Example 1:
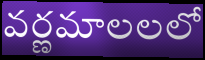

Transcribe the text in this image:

వర్ణమాలలలో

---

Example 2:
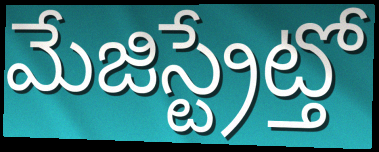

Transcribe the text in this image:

మేజిస్ట్రేట్తో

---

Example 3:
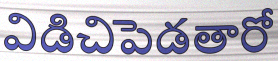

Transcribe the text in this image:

విడిచిపెడతారో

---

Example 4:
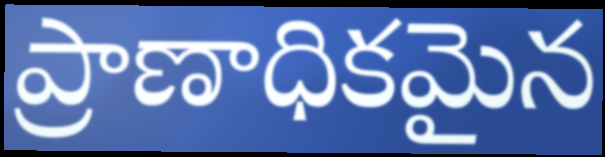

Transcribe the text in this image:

ప్రాణాధికమైన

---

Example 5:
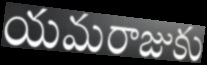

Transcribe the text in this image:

యమరాజుకు